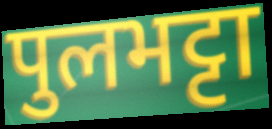
पुलभट्टा